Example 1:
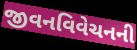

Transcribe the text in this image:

જીવનવિવેચનની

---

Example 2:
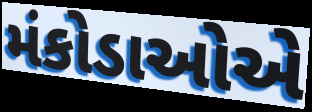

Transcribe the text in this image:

મંકોડાઓએ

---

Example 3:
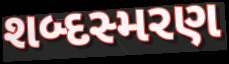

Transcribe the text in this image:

શબ્દસ્મરણ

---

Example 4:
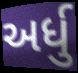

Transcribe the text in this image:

અર્ધુ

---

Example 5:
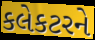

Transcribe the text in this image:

કલેકટરને